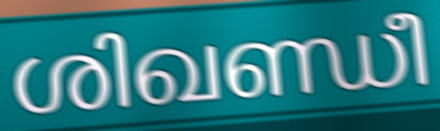
ശിഖണ്ഡീ